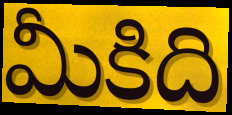
మీకిది